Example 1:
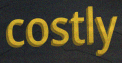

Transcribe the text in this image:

costly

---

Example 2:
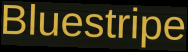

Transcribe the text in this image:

Bluestripe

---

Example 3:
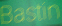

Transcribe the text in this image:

Bastin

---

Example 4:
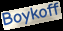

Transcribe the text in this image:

Boykoff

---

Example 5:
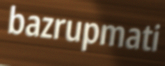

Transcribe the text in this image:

bazrupmati